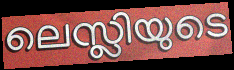
ലെസ്ലിയുടെ